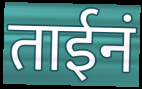
ताईनं